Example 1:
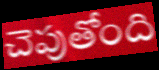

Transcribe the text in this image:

చెపుతోంది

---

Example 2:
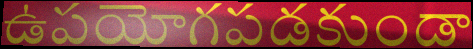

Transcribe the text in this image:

ఉపయోగపడకుండా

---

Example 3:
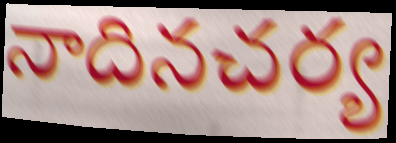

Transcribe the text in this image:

నాదినచర్య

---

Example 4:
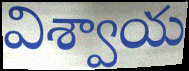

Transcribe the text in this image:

విశ్వాయ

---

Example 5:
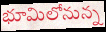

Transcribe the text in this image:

భూమిలోనున్న